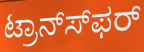
ಟ್ರಾನ್ಸ್‍ಫರ್